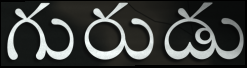
గురుడు